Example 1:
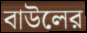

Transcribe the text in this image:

বাউলের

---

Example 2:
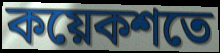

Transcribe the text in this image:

কয়েকশতে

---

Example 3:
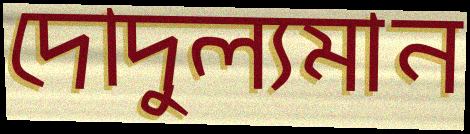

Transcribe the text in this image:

দোদুল্যমান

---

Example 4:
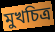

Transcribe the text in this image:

মুখচিত্র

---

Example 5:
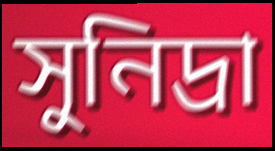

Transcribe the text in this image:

সুনিদ্রা